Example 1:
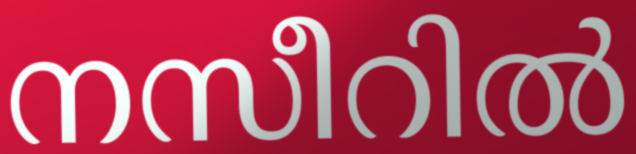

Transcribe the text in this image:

നസീറിൽ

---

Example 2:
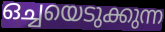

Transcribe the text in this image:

ഒച്ചയെടുക്കുന്ന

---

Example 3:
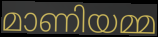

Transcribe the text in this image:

മാണിയമ്മ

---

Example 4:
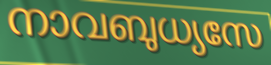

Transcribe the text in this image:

നാവബുധ്യസേ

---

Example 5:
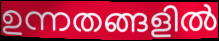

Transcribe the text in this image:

ഉന്നതങ്ങളിൽ